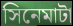
সিনেমাটা